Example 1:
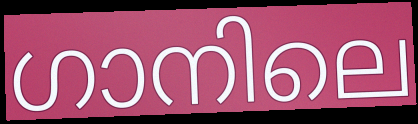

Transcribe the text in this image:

ഗാനിലെ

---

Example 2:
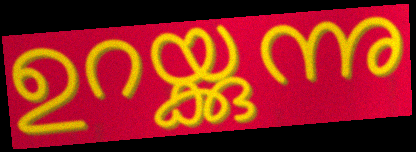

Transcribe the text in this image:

ഉറയ്ക്കുന്നു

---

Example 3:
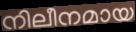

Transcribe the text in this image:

നിലീനമായ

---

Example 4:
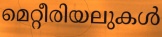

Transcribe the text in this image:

മെറ്റീരിയലുകൾ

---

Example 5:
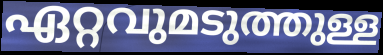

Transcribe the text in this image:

ഏറ്റവുമടുത്തുള്ള